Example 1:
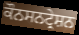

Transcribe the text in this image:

ਕੌਨਸਨਟ੍ਰੇਸ਼ਨ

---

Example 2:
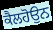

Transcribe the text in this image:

ਕੈਲਹੋਉਨ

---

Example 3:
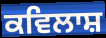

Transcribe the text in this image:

ਕਵਿਲਾਸ਼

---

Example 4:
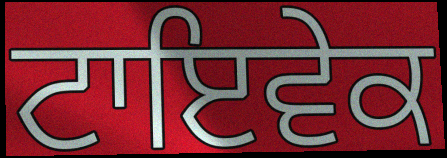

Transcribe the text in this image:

ਟਾਇਵੇਕ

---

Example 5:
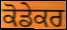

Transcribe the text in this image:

ਕੋਡੇਕਰ